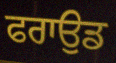
ਫਰਾਉਡ